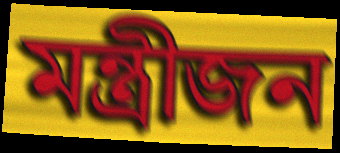
মন্ত্ৰীজন